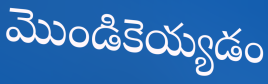
మొండికెయ్యడం